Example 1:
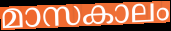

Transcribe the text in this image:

മാസകാലം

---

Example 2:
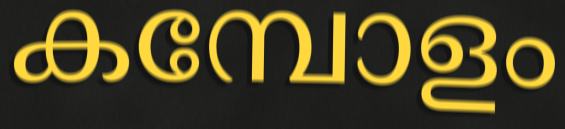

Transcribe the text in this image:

കമ്പോളം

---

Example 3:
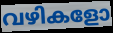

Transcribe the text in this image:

വഴികളോ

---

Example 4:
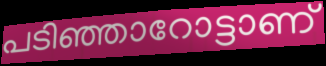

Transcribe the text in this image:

പടിഞ്ഞാറോട്ടാണ്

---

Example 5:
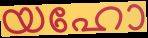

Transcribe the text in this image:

യഹോ